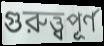
গুৰুত্ত্বপূৰ্ণ